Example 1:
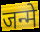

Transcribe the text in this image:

जन्मे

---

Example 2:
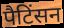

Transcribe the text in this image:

पैटिंसन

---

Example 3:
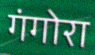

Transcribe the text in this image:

गंगोरा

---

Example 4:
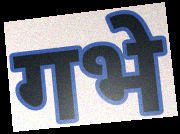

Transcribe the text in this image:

गभे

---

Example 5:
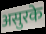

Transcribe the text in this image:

असुरके